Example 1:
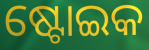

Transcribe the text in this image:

ଷ୍ଟୋଇକ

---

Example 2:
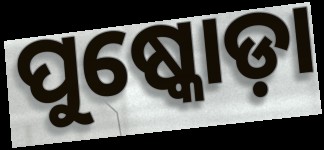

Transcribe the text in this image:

ପୁଷ୍କୋଡ଼ା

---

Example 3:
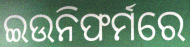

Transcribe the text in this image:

ଇଉନିଫର୍ମରେ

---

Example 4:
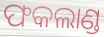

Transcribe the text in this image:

ଫକଲାଣ୍ଡ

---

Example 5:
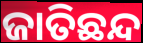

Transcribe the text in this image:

ଜାତିଛନ୍ଦ